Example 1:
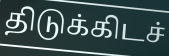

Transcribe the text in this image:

திடுக்கிடச்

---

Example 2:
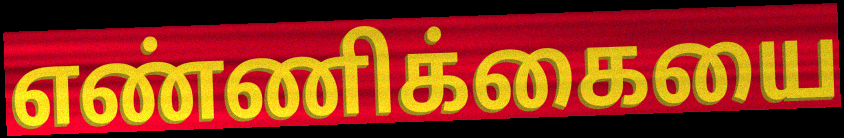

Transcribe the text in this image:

எண்ணிக்கையை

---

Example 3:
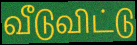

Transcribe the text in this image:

வீடுவிட்டு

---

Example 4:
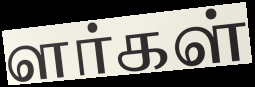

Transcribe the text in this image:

ளர்கள்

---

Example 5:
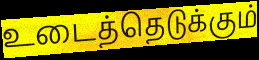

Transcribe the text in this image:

உடைத்தெடுக்கும்